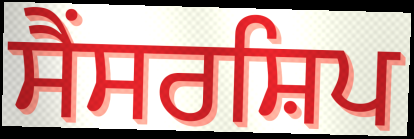
ਸੈਂਸਰਸ਼ਿਪ